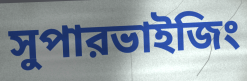
সুপারভাইজিং